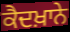
ਕੈਦਖ਼ਾਨੇ